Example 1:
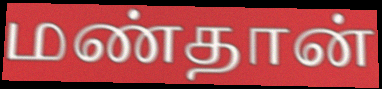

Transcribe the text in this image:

மண்தான்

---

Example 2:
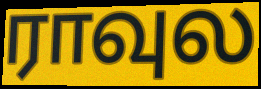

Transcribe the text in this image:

ராவுல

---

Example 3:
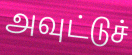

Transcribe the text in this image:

அவுட்டுச்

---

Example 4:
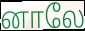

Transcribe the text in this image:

னாலே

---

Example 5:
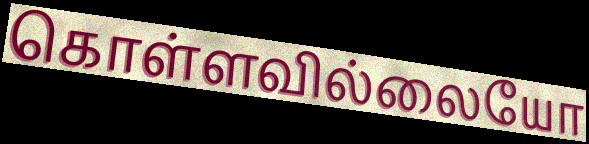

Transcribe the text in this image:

கொள்ளவில்லையோ